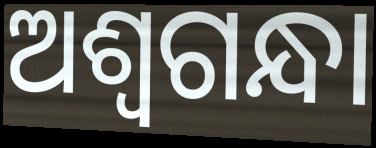
ଅଶ୍ୱଗନ୍ଧା